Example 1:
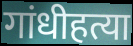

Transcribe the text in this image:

गांधीहत्या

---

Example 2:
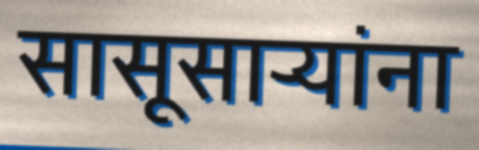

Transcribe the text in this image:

सासूसाऱ्यांना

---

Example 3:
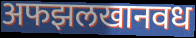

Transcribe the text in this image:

अफझलखानवध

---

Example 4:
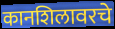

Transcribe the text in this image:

कानशिलावरचे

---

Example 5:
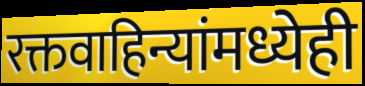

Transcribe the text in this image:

रक्तवाहिन्यांमध्येही